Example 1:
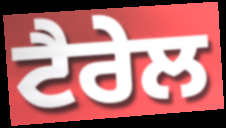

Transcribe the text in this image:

ਟੈਰੇਲ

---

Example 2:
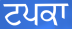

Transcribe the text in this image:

ਟਪਕਾ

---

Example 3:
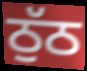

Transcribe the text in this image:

ਠੁੱਠ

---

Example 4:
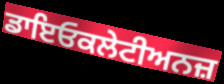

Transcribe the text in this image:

ਡਾਇਓਕਲੇਟੀਅਨਜ਼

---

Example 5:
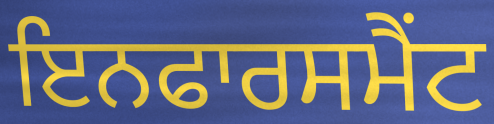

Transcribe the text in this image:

ਇਨਫਾਰਸਮੈਂਟ